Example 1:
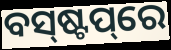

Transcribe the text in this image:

ବସ୍‌ଷ୍ଟପ୍‌ରେ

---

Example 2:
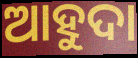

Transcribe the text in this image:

ଆହୁଦା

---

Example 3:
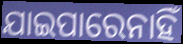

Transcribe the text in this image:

ଯାଇପାରେନାହିଁ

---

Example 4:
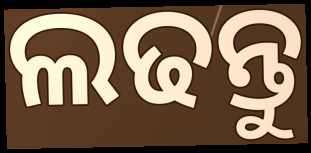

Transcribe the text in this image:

ଲଢନ୍ତୁ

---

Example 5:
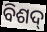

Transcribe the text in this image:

ବିଶଦ୍